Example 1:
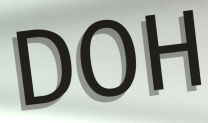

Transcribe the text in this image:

DOH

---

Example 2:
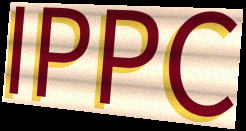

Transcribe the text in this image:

IPPC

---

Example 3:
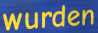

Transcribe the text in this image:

wurden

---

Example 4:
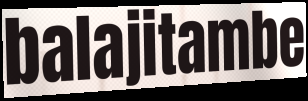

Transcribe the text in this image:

balajitambe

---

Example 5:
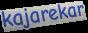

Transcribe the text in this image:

kajarekar